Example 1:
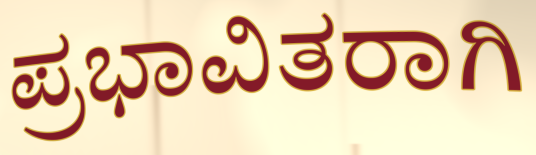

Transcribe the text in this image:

ಪ್ರಭಾವಿತರಾಗಿ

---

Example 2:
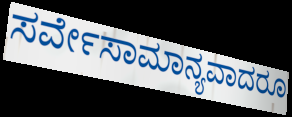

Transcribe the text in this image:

ಸರ್ವೇಸಾಮಾನ್ಯವಾದರೂ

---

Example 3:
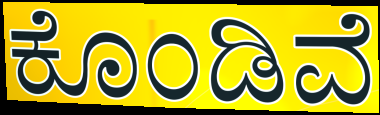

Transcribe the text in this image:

ಕೊಂಡಿವೆ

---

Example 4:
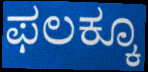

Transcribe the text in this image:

ಫಲಕ್ಕೂ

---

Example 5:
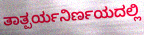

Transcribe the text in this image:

ತಾತ್ಪರ್ಯನಿರ್ಣಯದಲ್ಲಿ